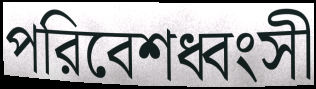
পরিবেশধ্বংসী